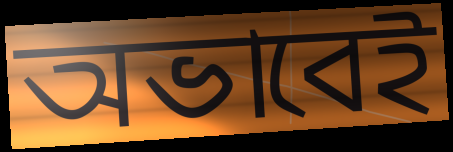
অভাবেই